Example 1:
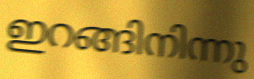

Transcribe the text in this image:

ഇറങ്ങിനിന്നു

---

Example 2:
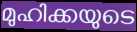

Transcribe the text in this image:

മുഹിക്കയുടെ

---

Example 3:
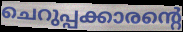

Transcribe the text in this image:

ചെറുപ്പക്കാരന്റെ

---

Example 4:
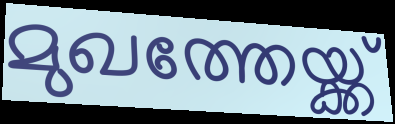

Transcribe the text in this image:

മുഖത്തേയ്ക്ക്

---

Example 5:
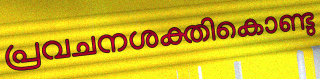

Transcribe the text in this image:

പ്രവചനശക്തികൊണ്ടു